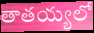
తాతయ్యలో